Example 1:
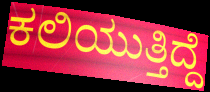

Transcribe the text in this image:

ಕಲಿಯುತ್ತಿದ್ದೆ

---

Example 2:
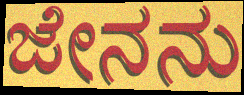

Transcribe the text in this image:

ಜೇನನು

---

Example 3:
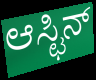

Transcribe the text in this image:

ಆಸ್ಟಿನ್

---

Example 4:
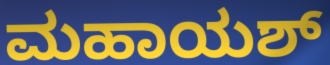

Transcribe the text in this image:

ಮಹಾಯಶ್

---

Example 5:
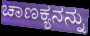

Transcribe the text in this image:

ಚಾಣಕ್ಯನನ್ನು